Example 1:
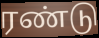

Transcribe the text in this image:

ரண்டு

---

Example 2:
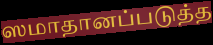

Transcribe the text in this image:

ஸமாதானப்படுத்த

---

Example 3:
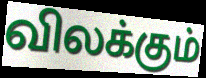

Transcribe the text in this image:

விலக்கும்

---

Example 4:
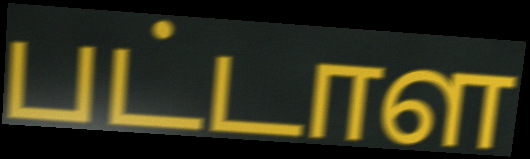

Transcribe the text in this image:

பட்டாள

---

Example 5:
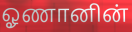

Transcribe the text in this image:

ஓணானின்